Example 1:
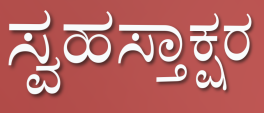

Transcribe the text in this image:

ಸ್ವಹಸ್ತಾಕ್ಷರ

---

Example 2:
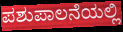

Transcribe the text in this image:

ಪಶುಪಾಲನೆಯಲ್ಲಿ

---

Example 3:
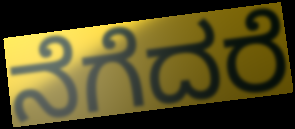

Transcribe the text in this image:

ನೆಗೆದರೆ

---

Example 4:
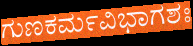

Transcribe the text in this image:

ಗುಣಕರ್ಮವಿಭಾಗಶಃ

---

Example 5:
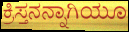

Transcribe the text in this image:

ಕ್ರಿಸ್ತನನ್ನಾಗಿಯೂ